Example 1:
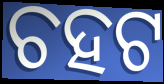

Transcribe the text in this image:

ଚହଟ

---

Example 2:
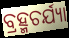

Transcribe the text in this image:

ବ୍ରହ୍ମଚର୍ଯ୍ୟା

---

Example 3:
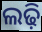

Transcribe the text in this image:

ଲଢ଼ି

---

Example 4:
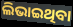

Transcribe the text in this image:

ଲିଭାଇଥିବା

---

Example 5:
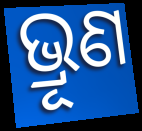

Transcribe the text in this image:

ଭ୍ରୂଣ